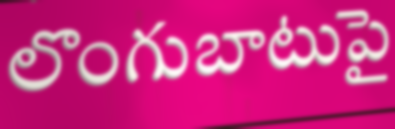
లొంగుబాటుపై